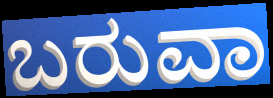
ಬರುವಾ